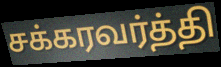
சக்கரவர்த்தி